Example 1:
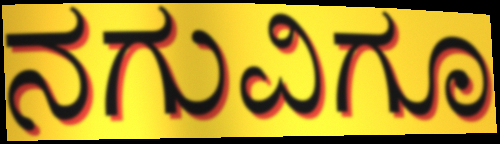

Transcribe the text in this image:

ನಗುವಿಗೂ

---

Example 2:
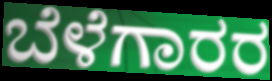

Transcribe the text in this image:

ಬೆಳೆಗಾರರ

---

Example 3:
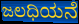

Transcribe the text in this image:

ಜಲಧಿಯನೆ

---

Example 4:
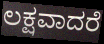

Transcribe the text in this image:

ಲಕ್ಷವಾದರೆ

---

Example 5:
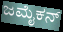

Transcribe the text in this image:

ಜಮೈಕನ್